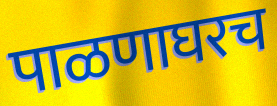
पाळणाघरच